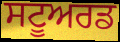
ਸਟੂਅਰਡ